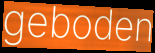
geboden